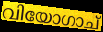
വിയോഗാച്